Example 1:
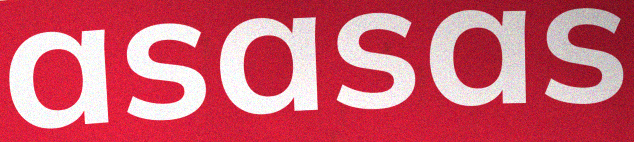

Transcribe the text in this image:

asasas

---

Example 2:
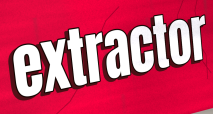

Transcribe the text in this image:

extractor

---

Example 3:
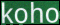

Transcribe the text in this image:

koho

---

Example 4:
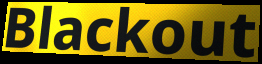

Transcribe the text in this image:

Blackout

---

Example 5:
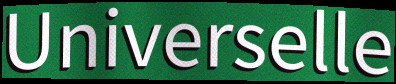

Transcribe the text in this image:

Universelle